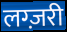
लग्ज़री